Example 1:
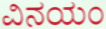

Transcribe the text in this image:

ವಿನಯಂ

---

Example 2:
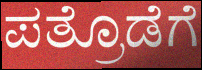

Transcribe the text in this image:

ಪತ್ರೊಡೆಗೆ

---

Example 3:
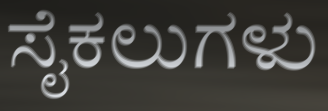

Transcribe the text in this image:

ಸೈಕಲುಗಳು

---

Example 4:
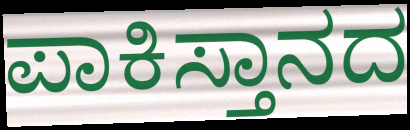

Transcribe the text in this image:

ಪಾಕಿಸ್ತಾನದ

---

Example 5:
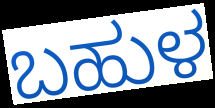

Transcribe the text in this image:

ಬಹುಳ